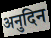
अनुदिन